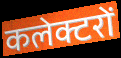
कलेक्टरों